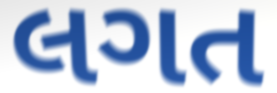
લગત